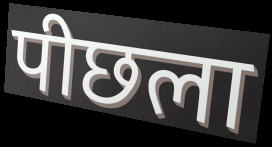
पीछला